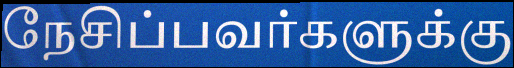
நேசிப்பவர்களுக்கு